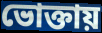
ভোক্তায়